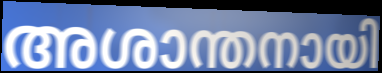
അശാന്തനായി